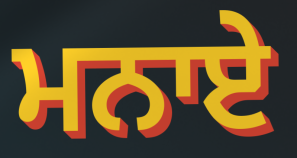
ਮਨਾਏ